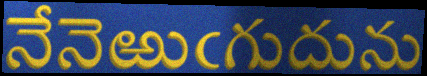
నేనెఱుఁగుదును